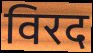
विरद